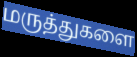
மருத்துகளை